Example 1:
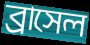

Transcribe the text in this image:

ব্রাসেল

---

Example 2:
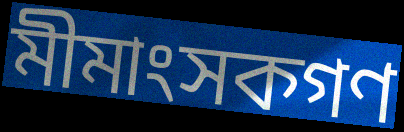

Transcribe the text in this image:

মীমাংসকগণ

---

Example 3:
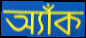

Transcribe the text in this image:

অ্যাঁক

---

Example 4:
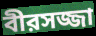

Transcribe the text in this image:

বীরসজ্জা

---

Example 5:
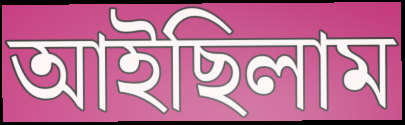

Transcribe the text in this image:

আইছিলাম